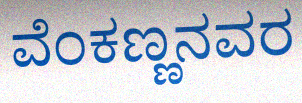
ವೆಂಕಣ್ಣನವರ